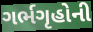
ગર્ભગૃહોની